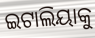
ଇଟାଲିୟାକୁ